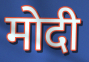
मोदी